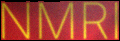
NMRI